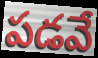
పడవే